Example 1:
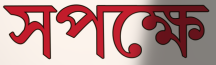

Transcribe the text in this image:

সপক্ষে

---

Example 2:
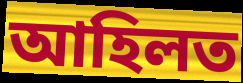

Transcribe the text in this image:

আহিলত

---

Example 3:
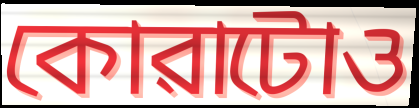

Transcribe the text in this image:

কোৱাটোও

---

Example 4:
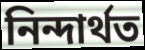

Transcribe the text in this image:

নিন্দাৰ্থত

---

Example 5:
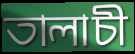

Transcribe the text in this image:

তালাচী